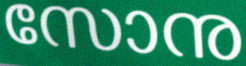
സോനു